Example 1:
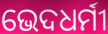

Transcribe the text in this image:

ଭେଦଧର୍ମୀ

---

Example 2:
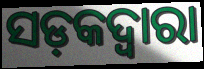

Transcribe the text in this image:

ସଡ଼କଦ୍ୱାରା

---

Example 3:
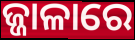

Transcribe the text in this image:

ଜ୍ଜାଳାରେ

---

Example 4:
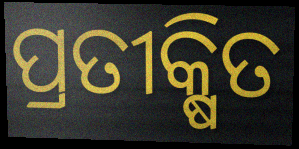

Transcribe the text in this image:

ପ୍ରତୀକ୍ଷିତ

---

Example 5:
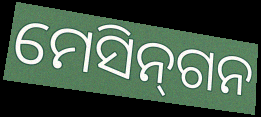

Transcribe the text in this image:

ମେସିନ୍‌ଗନ